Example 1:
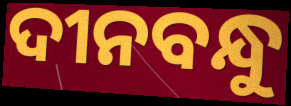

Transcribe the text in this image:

ଦୀନବନ୍ଧୁ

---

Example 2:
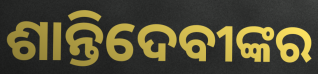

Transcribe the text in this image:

ଶାନ୍ତିଦେବୀଙ୍କର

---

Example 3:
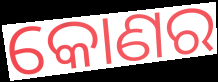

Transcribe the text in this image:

କୋଣର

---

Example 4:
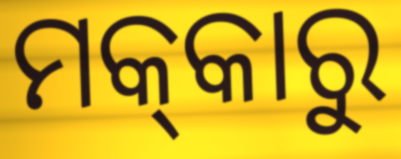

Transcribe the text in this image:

ମକ୍‌କାରୁ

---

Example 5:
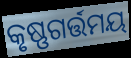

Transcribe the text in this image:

କୃଷ୍ଣଗର୍ତ୍ତମୟ